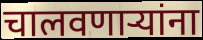
चालवणार्‍यांना